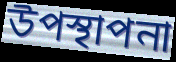
উপস্থাপনা